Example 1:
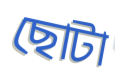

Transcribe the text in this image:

ছোটা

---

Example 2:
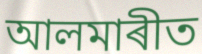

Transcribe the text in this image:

আলমাৰীত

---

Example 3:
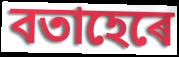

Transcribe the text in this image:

বতাহেৰে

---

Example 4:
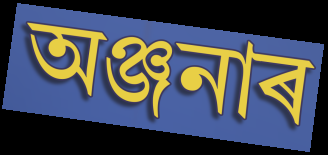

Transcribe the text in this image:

অঞ্জনাৰ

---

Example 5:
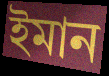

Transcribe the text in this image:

ইমান